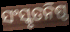
ସଂସ୍କୃତନିଷ୍ଠ